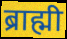
ब्राह्मी